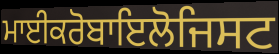
ਮਾਈਕਰੋਬਾਇਲੋਜਿਸਟ